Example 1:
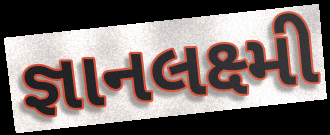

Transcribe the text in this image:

જ્ઞાનલક્ષ્મી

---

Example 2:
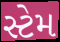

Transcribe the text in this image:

સ્ટેમ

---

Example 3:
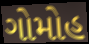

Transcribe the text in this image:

ગોમોહ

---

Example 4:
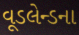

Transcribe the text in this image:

વૂડલેન્ડના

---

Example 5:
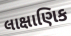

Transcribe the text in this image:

લાક્ષાણિક